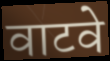
वाटवे